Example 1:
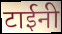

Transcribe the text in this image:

टाईनी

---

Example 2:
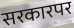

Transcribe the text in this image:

सरकारपर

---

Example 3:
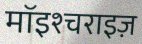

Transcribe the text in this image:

मॉइश्चराइज़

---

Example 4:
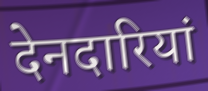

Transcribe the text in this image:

देनदारियां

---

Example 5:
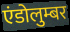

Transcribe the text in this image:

एंडोलुम्बर